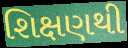
શિક્ષણથી